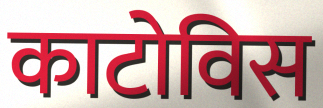
काटोविस